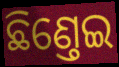
ଛିଣ୍ତେଇ